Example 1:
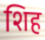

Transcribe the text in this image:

शिह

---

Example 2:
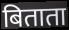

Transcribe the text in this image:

बिताता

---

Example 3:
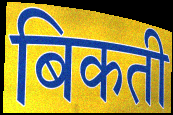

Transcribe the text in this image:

बिकती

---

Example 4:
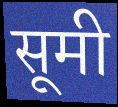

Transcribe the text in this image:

सूमी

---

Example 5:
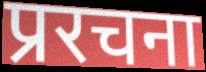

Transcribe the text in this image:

प्ररचना